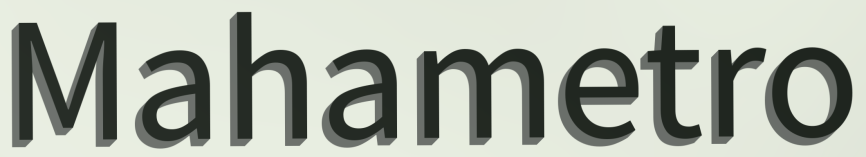
Mahametro